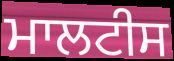
ਮਾਲਟੀਸ